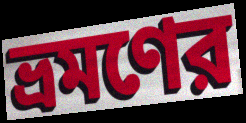
ভ্রমণের